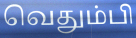
வெதும்பி